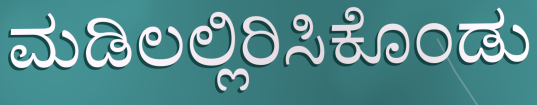
ಮಡಿಲಲ್ಲಿರಿಸಿಕೊಂಡು